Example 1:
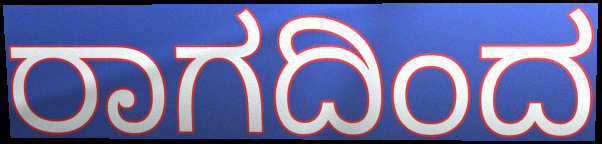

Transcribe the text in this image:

ರಾಗದಿಂದ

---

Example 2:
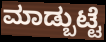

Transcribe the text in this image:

ಮಾಡ್ಬುಟ್ಟೆ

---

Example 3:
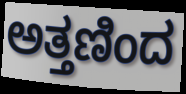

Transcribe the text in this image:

ಅತ್ತಣಿಂದ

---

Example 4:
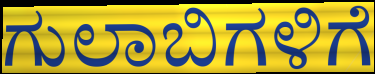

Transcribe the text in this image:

ಗುಲಾಬಿಗಳಿಗೆ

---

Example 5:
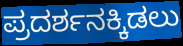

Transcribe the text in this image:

ಪ್ರದರ್ಶನಕ್ಕಿಡಲು